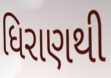
ધિરાણથી